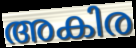
അകിര